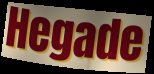
Hegade